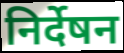
निर्देषन